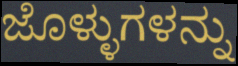
ಜೊಳ್ಳುಗಳನ್ನು